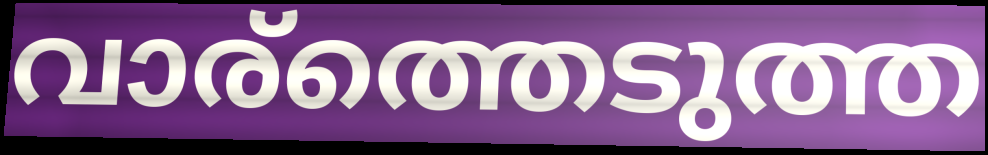
വാര്ത്തെടുത്ത